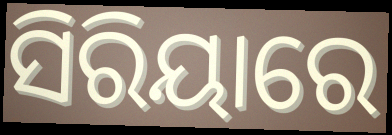
ସିରିୟାରେ